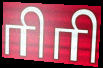
ரிரி